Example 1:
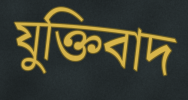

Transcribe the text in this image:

যুক্তিবাদ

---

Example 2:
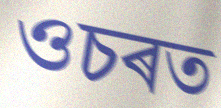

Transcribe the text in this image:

ওচৰত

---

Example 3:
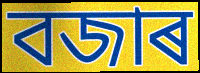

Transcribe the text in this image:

বজাৰ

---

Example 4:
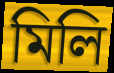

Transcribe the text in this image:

মিলি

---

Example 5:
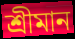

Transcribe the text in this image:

শ্ৰীমান